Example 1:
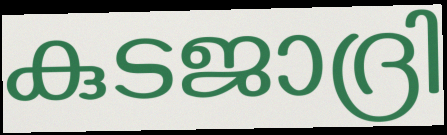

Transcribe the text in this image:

കുടജാദ്രി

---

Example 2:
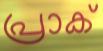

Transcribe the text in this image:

പ്രാക്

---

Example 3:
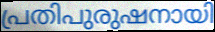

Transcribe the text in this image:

പ്രതിപുരുഷനായി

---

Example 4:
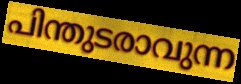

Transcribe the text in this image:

പിന്തുടരാവുന്ന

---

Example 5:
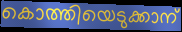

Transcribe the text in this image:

കൊത്തിയെടുക്കാന്